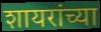
शायरांच्या